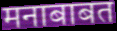
मनाबाबत